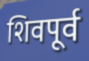
शिवपूर्व